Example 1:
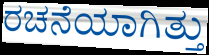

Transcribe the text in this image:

ರಚನೆಯಾಗಿತ್ತು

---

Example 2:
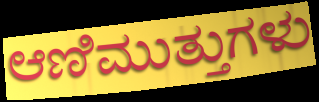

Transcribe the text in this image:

ಆಣಿಮುತ್ತುಗಳು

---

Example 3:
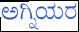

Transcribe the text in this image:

ಅಗ್ನಿಯರ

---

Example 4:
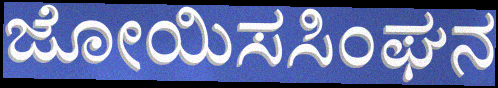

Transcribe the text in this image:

ಜೋಯಿಸಸಿಂಘನ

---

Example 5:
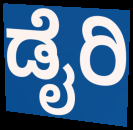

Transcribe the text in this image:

ಡೈರಿ